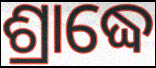
ଶ୍ରାଦ୍ଧେ